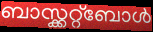
ബാസ്ക്കറ്റ്ബോൾ